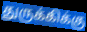
துருக்கிக்கு